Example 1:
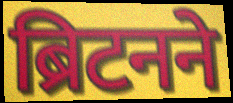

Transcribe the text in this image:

ब्रिटनने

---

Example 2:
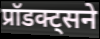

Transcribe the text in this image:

प्रॉडक्ट्सने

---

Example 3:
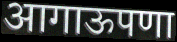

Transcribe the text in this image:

आगाऊपणा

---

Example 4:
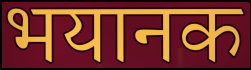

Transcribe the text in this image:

भयानक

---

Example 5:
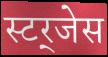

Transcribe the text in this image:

स्टर्जेस